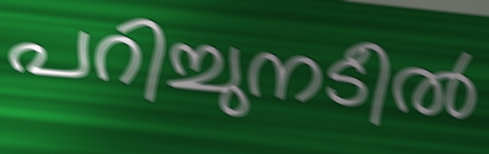
പറിച്ചുനടീൽ